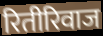
रितीरिवाज